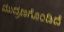
ಮುದ್ರಣಗೊಂಡಿದೆ